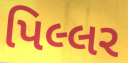
પિલ્લર